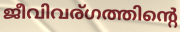
ജീവിവര്ഗത്തിന്റെ